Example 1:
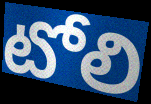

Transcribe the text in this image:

టోలి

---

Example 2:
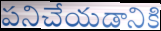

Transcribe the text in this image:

పనిచేయడానికి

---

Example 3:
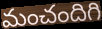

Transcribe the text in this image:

మంచందిగి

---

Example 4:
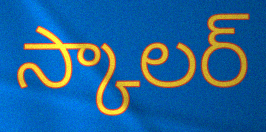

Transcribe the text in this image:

స్కాలర్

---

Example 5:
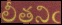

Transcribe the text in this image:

లీతనిఁ